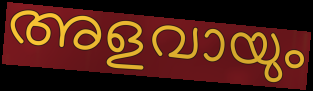
അളവായും